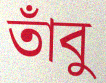
তাঁবু